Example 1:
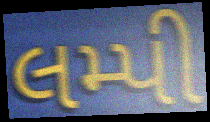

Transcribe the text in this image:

લમ્પી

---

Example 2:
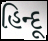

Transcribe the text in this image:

હિન્દૂ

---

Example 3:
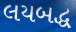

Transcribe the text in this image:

લયબદ્ધ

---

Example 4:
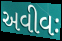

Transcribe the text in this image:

અવીવઃ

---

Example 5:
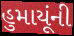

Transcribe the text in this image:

હુમાયૂંની